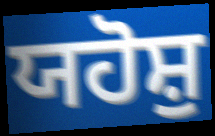
ਯਹੋਸ਼ੁ